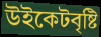
উইকেটবৃষ্টি